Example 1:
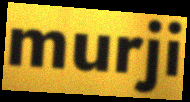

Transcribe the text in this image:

murji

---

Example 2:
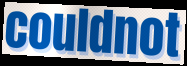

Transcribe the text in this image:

couldnot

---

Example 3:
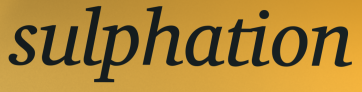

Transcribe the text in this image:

sulphation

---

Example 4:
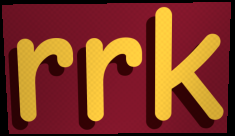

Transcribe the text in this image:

rrk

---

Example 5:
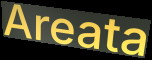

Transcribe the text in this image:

Areata